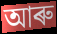
আৰু